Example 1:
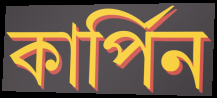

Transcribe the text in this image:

কার্পিন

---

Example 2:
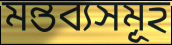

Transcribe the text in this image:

মন্তব্যসমূহ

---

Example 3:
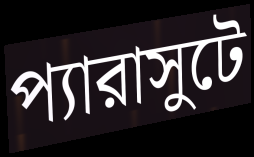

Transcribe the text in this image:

প্যারাসুটে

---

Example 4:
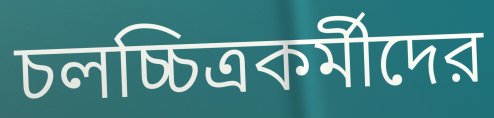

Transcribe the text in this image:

চলচ্চিত্রকর্মীদের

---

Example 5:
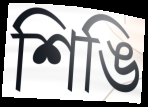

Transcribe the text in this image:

শিঙি